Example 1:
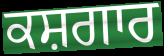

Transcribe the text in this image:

ਕਸ਼ਗਾਰ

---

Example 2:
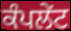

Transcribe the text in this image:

ਕੰਪਲੇਂਟ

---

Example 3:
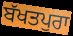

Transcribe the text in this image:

ਬੱਖਤਪੁਰਾ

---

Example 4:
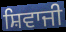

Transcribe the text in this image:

ਸ਼ਿਵਾਜੀ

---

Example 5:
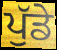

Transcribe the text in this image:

ਪੁੱਡੇ